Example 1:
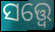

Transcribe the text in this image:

ସତ୍ତ୍ବେ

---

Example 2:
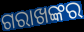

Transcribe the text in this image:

ଗରାଖଙ୍କର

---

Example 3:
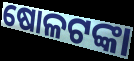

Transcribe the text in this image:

ଷୋଳଟଙ୍କା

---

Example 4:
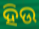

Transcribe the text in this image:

ହିଉ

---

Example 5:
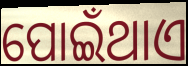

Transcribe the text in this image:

ପୋଇଁଥାଏ